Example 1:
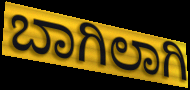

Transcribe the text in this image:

ಬಾಗಿಲಾಗಿ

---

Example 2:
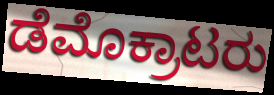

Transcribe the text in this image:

ಡೆಮೊಕ್ರಾಟರು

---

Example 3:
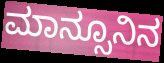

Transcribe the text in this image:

ಮಾನ್ಸೂನಿನ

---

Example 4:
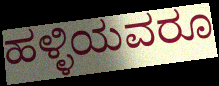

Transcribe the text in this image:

ಹಳ್ಳಿಯವರೂ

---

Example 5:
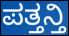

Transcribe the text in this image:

ಪತ್ತನ್ತಿ